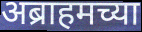
अब्राहमच्या